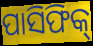
ପାସିଫିକ୍